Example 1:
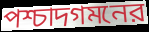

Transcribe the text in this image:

পশ্চাদগমনের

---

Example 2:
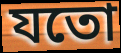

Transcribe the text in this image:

যতো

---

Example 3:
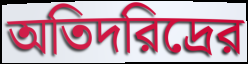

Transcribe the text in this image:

অতিদরিদ্রের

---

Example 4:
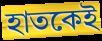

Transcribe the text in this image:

হাতকেই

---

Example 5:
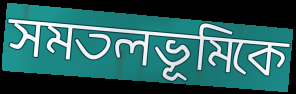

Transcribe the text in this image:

সমতলভূমিকে